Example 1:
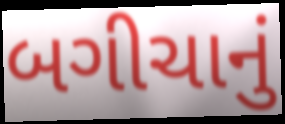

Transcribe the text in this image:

બગીચાનું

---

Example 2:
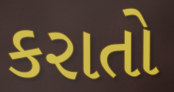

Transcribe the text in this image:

કરાતો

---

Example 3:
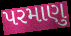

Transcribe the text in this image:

પરમાણુ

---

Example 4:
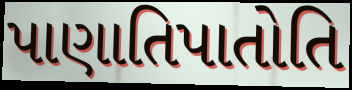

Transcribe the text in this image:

પાણાતિપાતોતિ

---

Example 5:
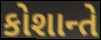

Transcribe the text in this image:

કોશાન્તે